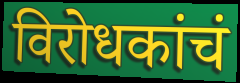
विरोधकांचं